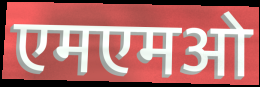
एमएमओ